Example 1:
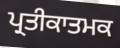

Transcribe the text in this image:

ਪ੍ਰਤੀਕਾਤਮਕ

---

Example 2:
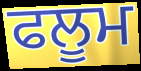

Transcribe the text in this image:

ਫਲੂਮ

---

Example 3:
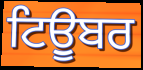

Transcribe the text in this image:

ਟਿਊੁਬਰ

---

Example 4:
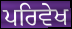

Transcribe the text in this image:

ਪਰਿਵੇਖ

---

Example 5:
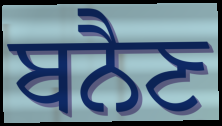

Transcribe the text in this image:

ਬਨੈਣ